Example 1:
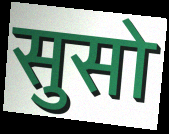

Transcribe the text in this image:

सुसो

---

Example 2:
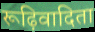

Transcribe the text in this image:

रूढ़िवादिता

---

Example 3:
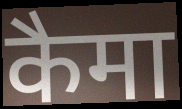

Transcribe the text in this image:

कैमा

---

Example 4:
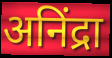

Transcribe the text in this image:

अनिंद्रा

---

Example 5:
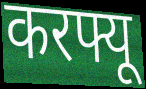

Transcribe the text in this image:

करफ्यू